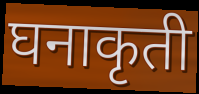
घनाकृती